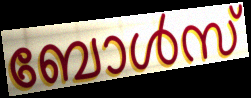
ബോൾസ്